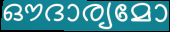
ഔദാര്യമോ